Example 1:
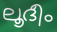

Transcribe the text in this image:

ലൂദീം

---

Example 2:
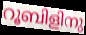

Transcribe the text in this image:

റൂബിളിനു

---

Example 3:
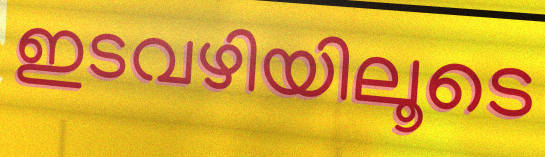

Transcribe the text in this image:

ഇടവഴിയിലൂടെ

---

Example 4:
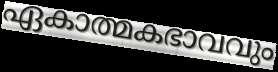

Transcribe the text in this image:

ഏകാത്മകഭാവവും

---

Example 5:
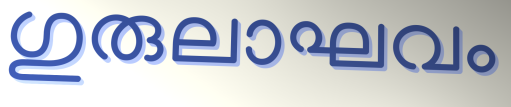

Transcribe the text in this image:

ഗുരുലാഘവം